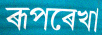
ৰূপৰেখা